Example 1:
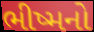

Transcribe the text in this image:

ભીષ્મનો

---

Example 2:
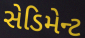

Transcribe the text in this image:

સેડિમેન્ટ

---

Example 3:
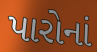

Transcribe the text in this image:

પારોનાં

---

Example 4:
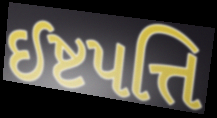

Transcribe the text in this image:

ઈષ્ટપત્તિ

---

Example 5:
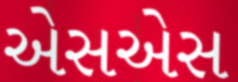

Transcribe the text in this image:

એસએસ